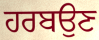
ਹਰਬਉਣ